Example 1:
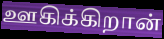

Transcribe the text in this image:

ஊகிக்கிறான்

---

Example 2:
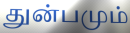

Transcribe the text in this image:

துன்பமும்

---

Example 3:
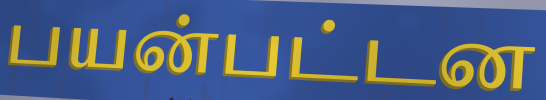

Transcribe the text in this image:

பயன்பட்டன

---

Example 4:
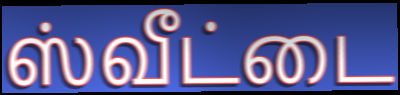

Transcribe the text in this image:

ஸ்வீட்டை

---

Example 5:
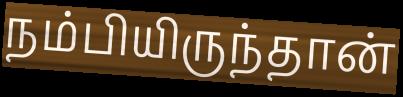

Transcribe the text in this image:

நம்பியிருந்தான்